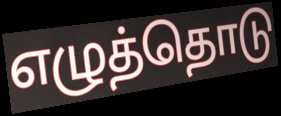
எழுத்தொடு